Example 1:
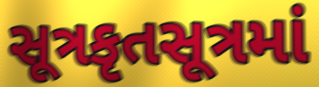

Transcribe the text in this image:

સૂત્રકૃતસૂત્રમાં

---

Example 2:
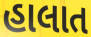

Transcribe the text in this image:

હાલાત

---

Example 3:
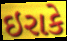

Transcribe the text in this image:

ઇરાકે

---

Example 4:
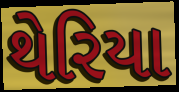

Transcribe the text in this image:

થેરિયા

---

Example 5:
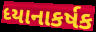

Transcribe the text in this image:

ધ્યાનાકર્ષક